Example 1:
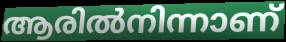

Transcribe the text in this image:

ആരിൽനിന്നാണ്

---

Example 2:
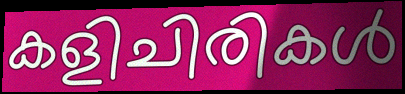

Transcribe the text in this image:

കളിചിരികൾ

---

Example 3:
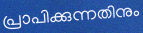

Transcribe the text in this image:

പ്രാപിക്കുന്നതിനും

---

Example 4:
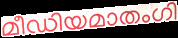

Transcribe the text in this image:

മീഡിയമാതംഗി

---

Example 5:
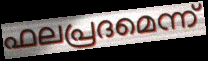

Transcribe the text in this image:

ഫലപ്രദമെന്ന്